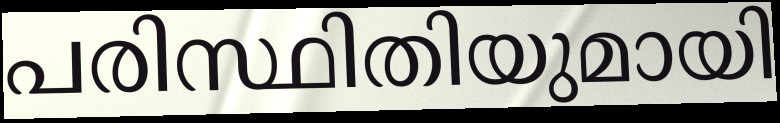
പരിസ്ഥിതിയുമായി